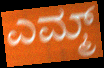
ಎಮ್ಮ್